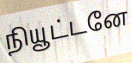
நியூட்டனே